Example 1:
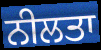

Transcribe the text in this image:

ਨੀਲਤਾ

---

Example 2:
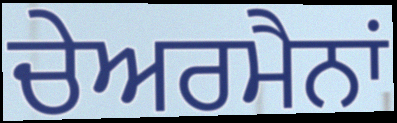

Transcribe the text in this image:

ਚੇਅਰਮੈਨਾਂ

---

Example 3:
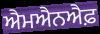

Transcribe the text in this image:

ਐਮਐਨਐਫ਼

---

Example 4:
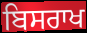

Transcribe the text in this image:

ਬਿਸਰਾਖ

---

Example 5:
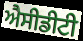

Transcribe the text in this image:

ਐਸੀਡੀਟੀ